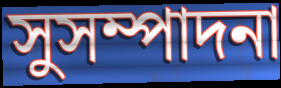
সুসম্পাদনা